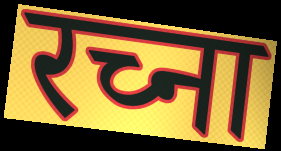
रच्ना